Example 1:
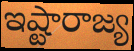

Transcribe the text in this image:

ఇష్టారాజ్య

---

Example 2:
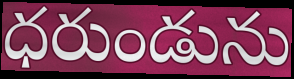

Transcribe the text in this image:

ధరుండును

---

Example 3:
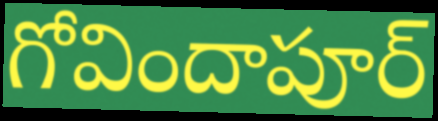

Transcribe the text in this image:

గోవిందాపూర్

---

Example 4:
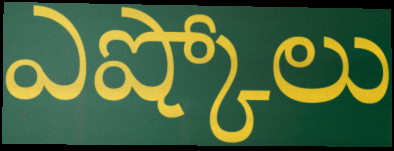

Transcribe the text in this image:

ఎష్కోలు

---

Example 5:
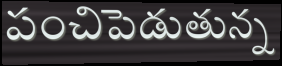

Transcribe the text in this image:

పంచిపెడుతున్న